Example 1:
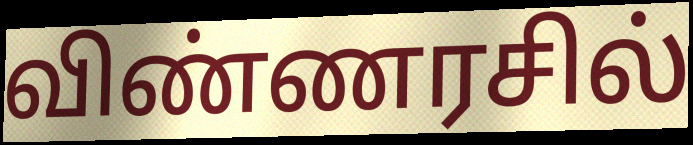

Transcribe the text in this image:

விண்ணரசில்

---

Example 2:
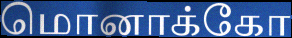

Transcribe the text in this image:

மொனாக்கோ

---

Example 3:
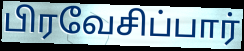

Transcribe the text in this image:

பிரவேசிப்பார்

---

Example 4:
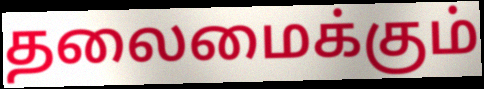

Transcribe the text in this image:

தலைமைக்கும்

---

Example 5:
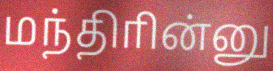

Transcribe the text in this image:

மந்திரின்னு